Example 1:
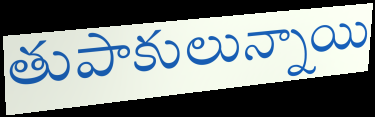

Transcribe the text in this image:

తుపాకులున్నాయి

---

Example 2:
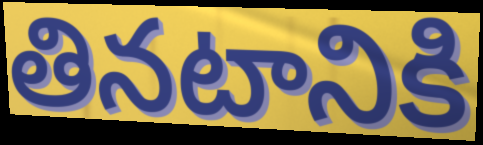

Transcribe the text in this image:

తినటానికి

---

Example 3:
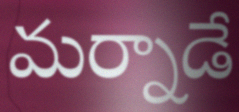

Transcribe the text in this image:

మర్నాడే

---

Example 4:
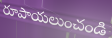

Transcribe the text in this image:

రూపాయలుంచండి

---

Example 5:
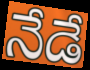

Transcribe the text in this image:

నేడే